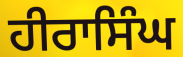
ਹੀਰਾਸਿੰਘ